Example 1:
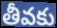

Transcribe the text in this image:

తీవకు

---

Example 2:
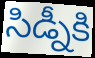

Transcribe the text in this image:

సిడ్నీకి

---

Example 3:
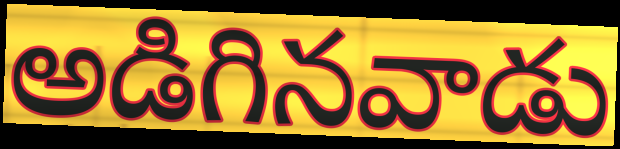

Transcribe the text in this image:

అడిగినవాడు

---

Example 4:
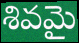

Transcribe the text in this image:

శివమై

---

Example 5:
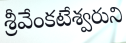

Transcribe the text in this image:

శ్రీవేంకటేశ్వరుని